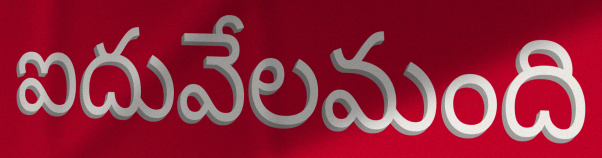
ఐదువేలమంది